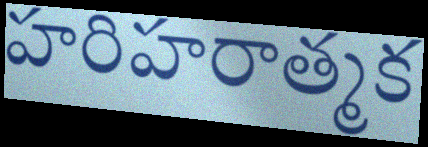
హరిహరాత్మక